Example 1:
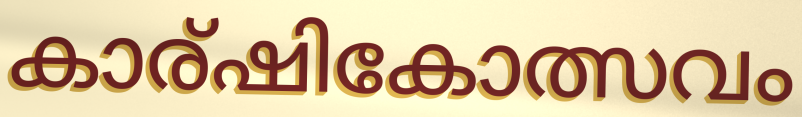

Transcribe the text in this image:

കാര്ഷികോത്സവം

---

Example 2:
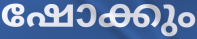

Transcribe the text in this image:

ഷോക്കും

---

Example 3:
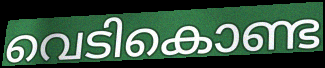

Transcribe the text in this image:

വെടികൊണ്ട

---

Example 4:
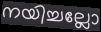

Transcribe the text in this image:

നയിച്ചല്ലോ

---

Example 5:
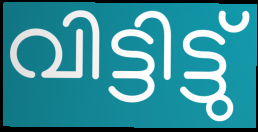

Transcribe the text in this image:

വിട്ടിട്ടു്